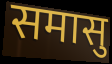
समासु